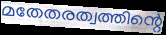
മതേതരത്വത്തിന്റെ